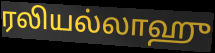
ரலியல்லாஹு